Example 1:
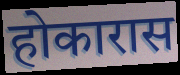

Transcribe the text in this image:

होकारास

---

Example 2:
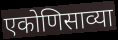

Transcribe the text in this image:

एकोणिसाव्या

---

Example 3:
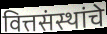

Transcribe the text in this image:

वित्तसंस्थांचे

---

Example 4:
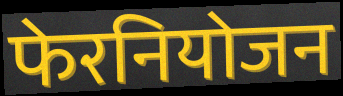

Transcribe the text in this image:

फेरनियोजन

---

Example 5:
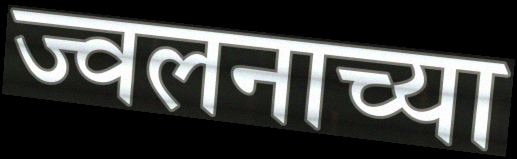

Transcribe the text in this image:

ज्वलनाच्या